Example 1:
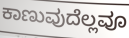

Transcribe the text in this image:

ಕಾಣುವುದೆಲ್ಲವೂ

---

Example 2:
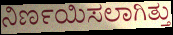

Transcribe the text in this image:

ನಿರ್ಣಯಿಸಲಾಗಿತ್ತು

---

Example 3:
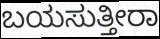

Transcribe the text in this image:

ಬಯಸುತ್ತೀರಾ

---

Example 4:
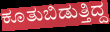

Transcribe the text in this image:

ಕೂತುಬಿಡುತ್ತಿದ್ದ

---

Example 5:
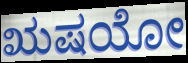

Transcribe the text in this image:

ಋಷಯೋ